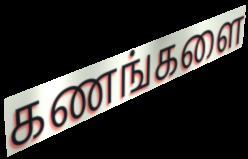
கணங்களை